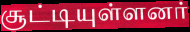
சூட்டியுள்ளனர்